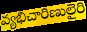
వ్యభిచారిణులైరి